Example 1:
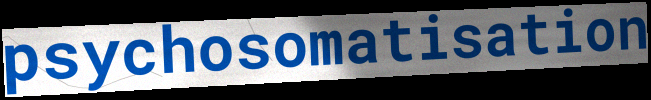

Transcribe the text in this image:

psychosomatisation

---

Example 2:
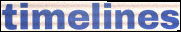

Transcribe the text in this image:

timelines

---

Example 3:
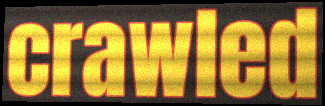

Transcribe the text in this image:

crawled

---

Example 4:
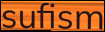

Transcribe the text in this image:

sufism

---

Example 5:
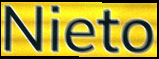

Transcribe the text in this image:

Nieto